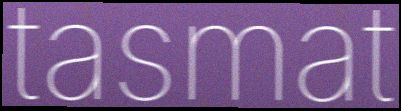
tasmat